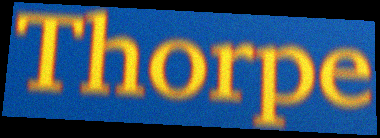
Thorpe